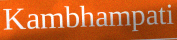
Kambhampati